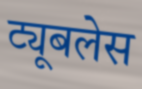
ट्यूबलेस